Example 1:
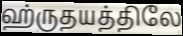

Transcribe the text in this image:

ஹ்ருதயத்திலே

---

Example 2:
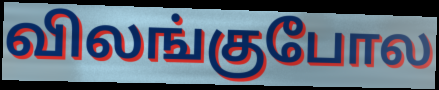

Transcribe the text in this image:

விலங்குபோல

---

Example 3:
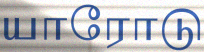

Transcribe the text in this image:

யாரோடு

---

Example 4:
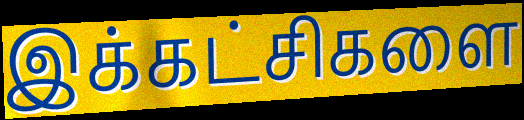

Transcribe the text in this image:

இக்கட்சிகளை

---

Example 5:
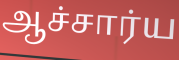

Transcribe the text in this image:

ஆச்சார்ய